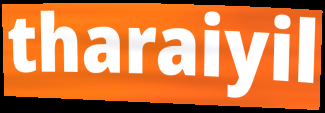
tharaiyil